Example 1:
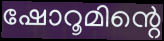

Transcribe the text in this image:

ഷോറൂമിന്റെ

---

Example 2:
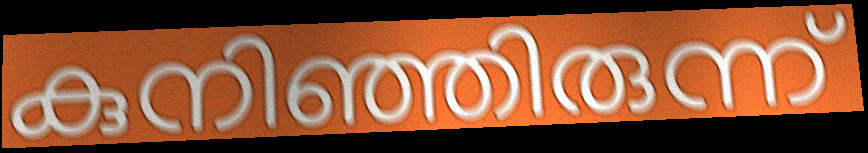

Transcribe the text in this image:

കുനിഞ്ഞിരുന്ന്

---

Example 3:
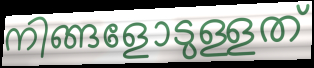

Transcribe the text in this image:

നിങ്ങളോടുള്ളത്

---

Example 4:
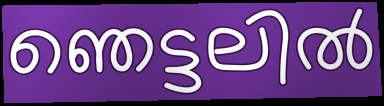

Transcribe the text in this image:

ഞെട്ടലിൽ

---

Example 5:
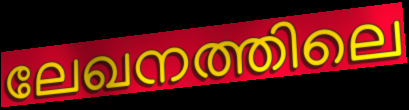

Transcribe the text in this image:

ലേഖനത്തിലെ